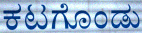
ಕಟಗೊಂಡು